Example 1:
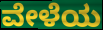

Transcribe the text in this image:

ವೇಳೆಯ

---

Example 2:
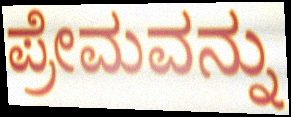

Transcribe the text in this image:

ಪ್ರೇಮವನ್ನು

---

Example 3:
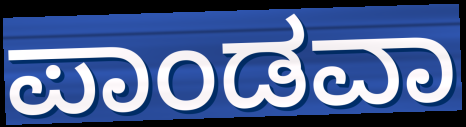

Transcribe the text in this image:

ಪಾಂಡವಾ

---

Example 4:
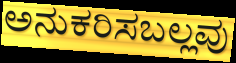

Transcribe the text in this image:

ಅನುಕರಿಸಬಲ್ಲವು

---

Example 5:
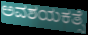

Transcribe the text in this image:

ಅವಶಯಕತ್ಸೆ